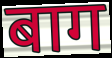
बाग